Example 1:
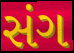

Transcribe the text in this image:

સંગ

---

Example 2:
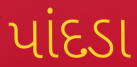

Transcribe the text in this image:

પાંદડા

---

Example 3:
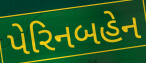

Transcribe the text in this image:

પેરિનબહેન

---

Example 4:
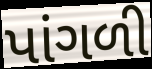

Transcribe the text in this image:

પાંગળી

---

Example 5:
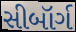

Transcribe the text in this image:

સીબૉર્ગ